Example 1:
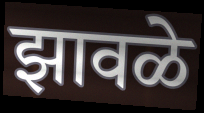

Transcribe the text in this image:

झावळे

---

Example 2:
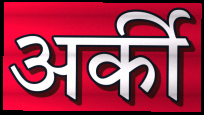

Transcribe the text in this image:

अर्की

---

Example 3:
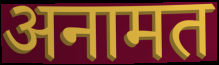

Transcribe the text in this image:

अनामत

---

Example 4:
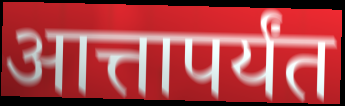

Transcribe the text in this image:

आत्तापर्यंत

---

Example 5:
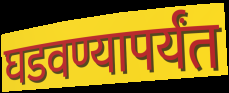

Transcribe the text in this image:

घडवण्यापर्यंत